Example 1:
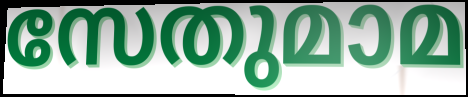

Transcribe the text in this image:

സേതുമാമ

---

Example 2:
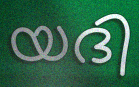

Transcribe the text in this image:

യദി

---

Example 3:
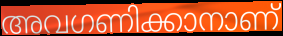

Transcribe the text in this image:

അവഗണിക്കാനാണ്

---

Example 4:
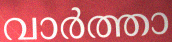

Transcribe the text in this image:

വാർത്താ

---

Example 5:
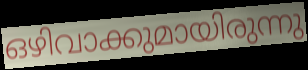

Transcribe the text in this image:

ഒഴിവാക്കുമായിരുന്നു